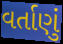
વર્તાણું